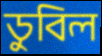
ডুবিল